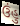
ઉંહુ